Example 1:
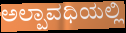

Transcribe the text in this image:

ಅಲ್ಪಾವಧಿಯಲ್ಲಿ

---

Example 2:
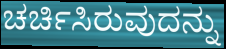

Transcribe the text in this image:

ಚರ್ಚಿಸಿರುವುದನ್ನು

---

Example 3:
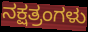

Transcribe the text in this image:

ನಕ್ಷತ್ರಂಗಳು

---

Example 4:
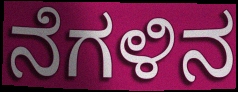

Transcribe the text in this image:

ನೆಗಳಿನ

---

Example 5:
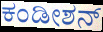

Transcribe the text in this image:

ಕಂಡೀಶನ್